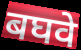
बघवे